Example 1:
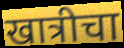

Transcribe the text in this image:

खात्रीचा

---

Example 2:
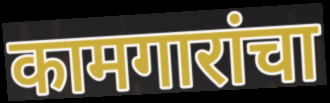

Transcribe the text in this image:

कामगारांचा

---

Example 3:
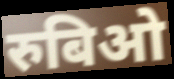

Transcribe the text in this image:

रुबिओ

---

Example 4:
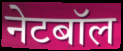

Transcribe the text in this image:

नेटबॉल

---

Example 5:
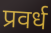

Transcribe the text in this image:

प्रवर्ध